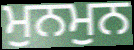
ਮੁਨਮੁਨ